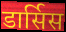
डार्सिस